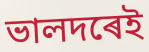
ভালদৰেই